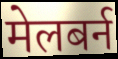
मेलबर्न